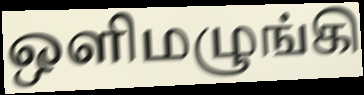
ஒளிமழுங்கி